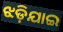
ଝଡ଼ିଯାଇ